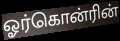
ஓர்கொன்ரின்